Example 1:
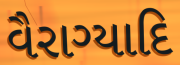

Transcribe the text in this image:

વૈરાગ્યાદિ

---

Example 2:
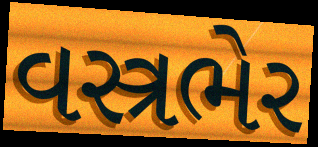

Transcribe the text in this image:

વસ્ત્રભેર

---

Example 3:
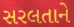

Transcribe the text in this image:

સરલતાને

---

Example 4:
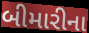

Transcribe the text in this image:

બીમારીના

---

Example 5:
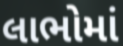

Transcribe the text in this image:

લાભોમાં